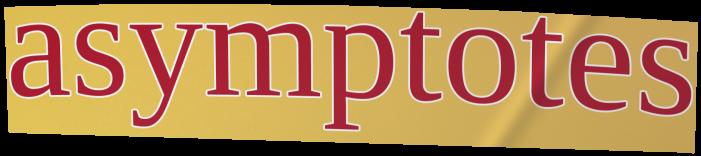
asymptotes